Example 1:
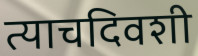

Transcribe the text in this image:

त्याचदिवशी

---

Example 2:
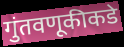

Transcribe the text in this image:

गुंतवणूकीकडे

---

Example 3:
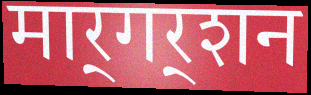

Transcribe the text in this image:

मार्गर्शन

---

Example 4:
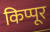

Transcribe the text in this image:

किप्पूर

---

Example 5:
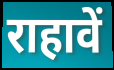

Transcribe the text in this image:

राहावें